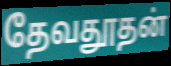
தேவதூதன்